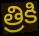
త్రికి